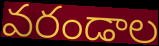
వరండాల